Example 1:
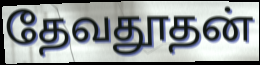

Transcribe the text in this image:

தேவதூதன்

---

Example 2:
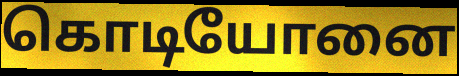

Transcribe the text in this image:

கொடியோனை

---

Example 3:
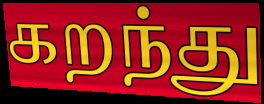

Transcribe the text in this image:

கறந்து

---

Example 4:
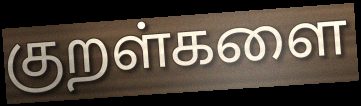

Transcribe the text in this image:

குறள்களை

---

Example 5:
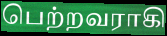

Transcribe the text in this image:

பெற்றவராகி